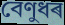
বেণুধৰ